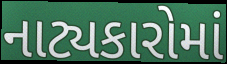
નાટ્યકારોમાં